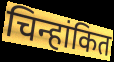
चिन्हांकित